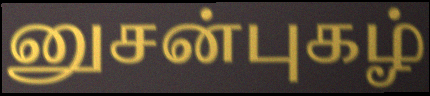
னுசன்புகழ்